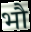
भौ